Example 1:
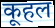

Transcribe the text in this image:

कूहल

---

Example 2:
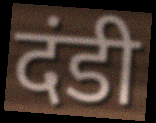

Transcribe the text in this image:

दंडी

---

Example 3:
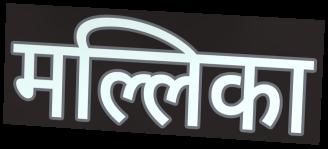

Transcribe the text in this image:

मल्लिका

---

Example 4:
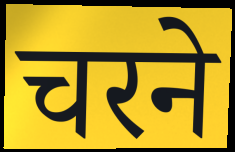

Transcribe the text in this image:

चरने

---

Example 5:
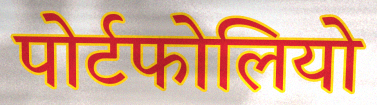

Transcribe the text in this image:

पोर्टफोलियो